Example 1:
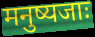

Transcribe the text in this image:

मनुष्यजाः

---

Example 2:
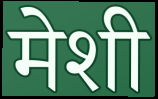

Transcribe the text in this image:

मेशी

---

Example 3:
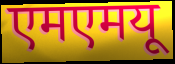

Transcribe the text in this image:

एमएमयू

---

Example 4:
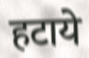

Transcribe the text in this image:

हटाये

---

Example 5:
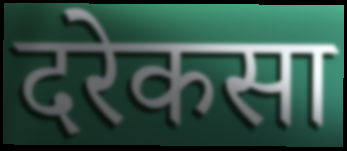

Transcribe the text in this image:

दरेकसा